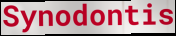
Synodontis